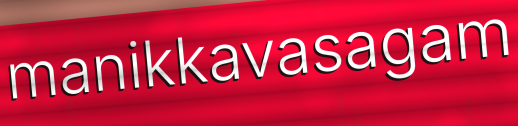
manikkavasagam